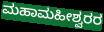
ಮಹಾಮಹೀಶ್ವರರ